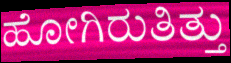
ಹೋಗಿರುತಿತ್ತು